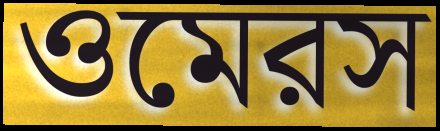
ওমেরস